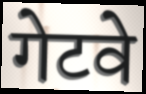
गेटवे